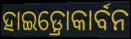
ହାଇଡ଼୍ରୋକାର୍ବନ